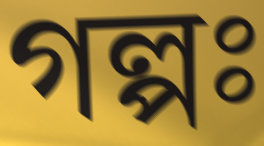
গল্পঃ